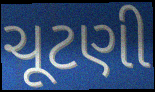
ચૂટણી